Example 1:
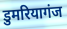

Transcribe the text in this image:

डुमरियागंज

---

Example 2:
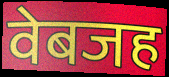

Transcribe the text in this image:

वेबजह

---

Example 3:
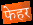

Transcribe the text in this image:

फेहर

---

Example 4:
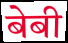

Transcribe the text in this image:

बेबी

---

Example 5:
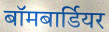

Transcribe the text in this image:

बॉमबार्डियर